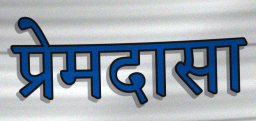
प्रेमदासा